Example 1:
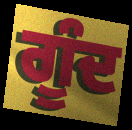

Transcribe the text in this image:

ਗੂੰਦ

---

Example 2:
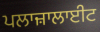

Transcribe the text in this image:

ਪਲਾਜ਼ਾਲਾਈਟ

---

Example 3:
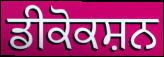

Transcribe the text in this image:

ਡੀਕੋਕਸ਼ਨ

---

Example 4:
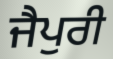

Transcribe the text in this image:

ਜੈਪੁਰੀ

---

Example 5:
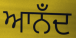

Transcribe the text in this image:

ਆਨਁਦ